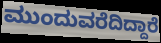
ಮುಂದುವರೆದಿದ್ದಾರೆ